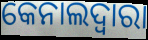
କେନାଲଦ୍ଵାରା